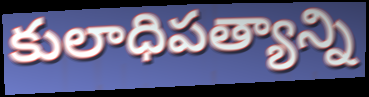
కులాధిపత్యాన్ని